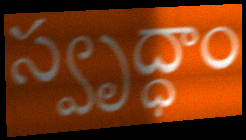
స్వృద్ధాం